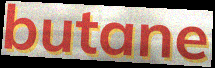
butane